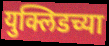
युक्लिडच्या